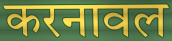
करनावल